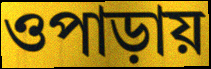
ওপাড়ায়